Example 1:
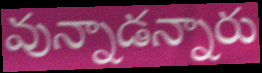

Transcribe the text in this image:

వున్నాడన్నారు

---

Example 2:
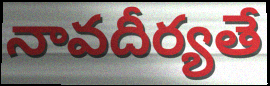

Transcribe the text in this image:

నావదీర్యతే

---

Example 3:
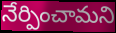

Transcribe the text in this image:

నేర్పించామని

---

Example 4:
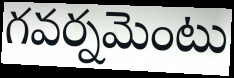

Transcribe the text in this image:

గవర్నమెంటు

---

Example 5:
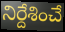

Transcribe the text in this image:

నిర్దేశించే